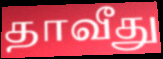
தாவீது